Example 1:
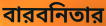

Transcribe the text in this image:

বারবনিতার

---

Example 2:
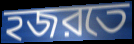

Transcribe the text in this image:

হজরতে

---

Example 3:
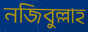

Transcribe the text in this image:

নজিবুল্লাহ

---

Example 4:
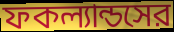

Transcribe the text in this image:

ফকল্যান্ডসের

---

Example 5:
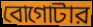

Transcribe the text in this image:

বোগোটার